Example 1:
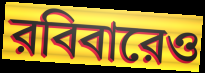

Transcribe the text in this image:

রবিবারেও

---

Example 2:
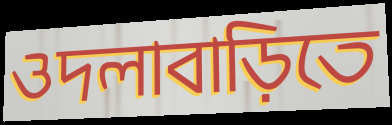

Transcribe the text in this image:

ওদলাবাড়িতে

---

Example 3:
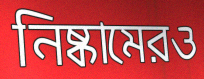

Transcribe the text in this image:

নিষ্কামেরও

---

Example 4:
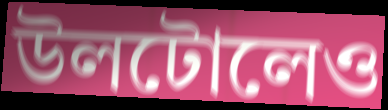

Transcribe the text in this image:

উলটোলেও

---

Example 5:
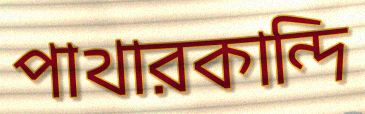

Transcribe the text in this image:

পাথারকান্দি